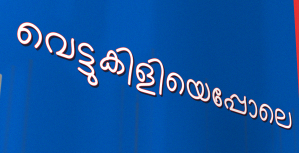
വെട്ടുകിളിയെപ്പോലെ